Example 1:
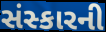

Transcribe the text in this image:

સંસ્કારની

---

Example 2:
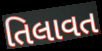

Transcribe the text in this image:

તિલાવત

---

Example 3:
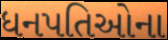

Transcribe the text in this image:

ધનપતિઓના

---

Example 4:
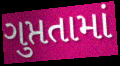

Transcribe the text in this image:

ગુપ્તતામાં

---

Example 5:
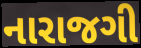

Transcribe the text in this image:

નારાજગી